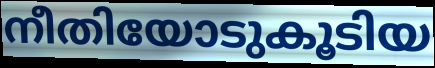
നീതിയോടുകൂടിയ